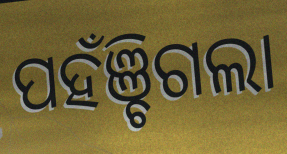
ପହଁଞ୍ଚିଗଲା